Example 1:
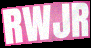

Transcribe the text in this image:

RWJR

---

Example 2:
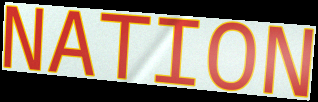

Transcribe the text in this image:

NATION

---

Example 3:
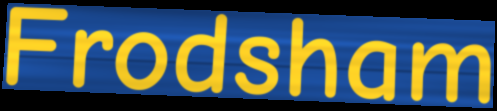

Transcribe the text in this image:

Frodsham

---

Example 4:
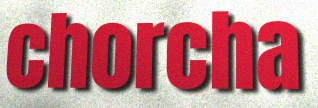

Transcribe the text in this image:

chorcha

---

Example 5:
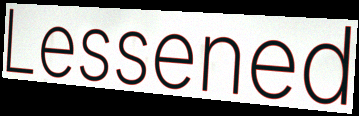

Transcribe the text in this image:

Lessened